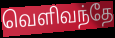
வெளிவந்தே